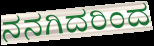
ನನಗಿದರಿಂದ